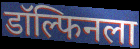
डॉल्फिनला